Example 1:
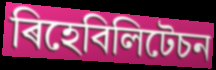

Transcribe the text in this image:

ৰিহেবিলিটেচন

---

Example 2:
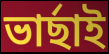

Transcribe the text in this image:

ভাৰ্ছাই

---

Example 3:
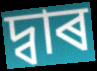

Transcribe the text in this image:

দ্বাৰ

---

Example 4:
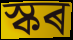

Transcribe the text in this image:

স্কৰ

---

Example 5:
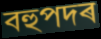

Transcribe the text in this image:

বহুপদৰ